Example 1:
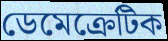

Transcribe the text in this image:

ডেমেক্রেটিক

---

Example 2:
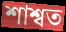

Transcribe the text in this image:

শাশ্বত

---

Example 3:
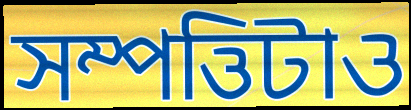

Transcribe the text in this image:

সম্পত্তিটাও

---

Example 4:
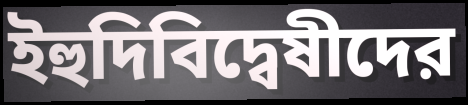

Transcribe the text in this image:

ইহুদিবিদ্বেষীদের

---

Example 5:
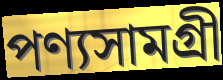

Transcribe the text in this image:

পণ্যসামগ্রী